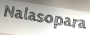
Nalasopara